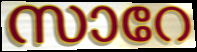
സാറേ